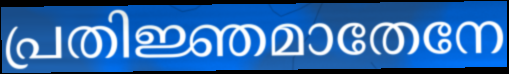
പ്രതിജ്ഞമാതേനേ